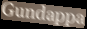
Gundappa